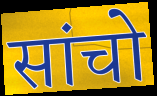
सांचो